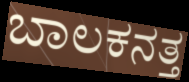
ಬಾಲಕನತ್ತ